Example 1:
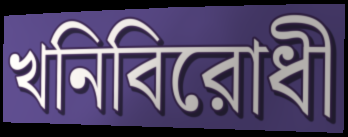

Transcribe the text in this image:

খনিবিরোধী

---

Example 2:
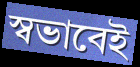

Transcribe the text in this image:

স্বভাবেই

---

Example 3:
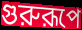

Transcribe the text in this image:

গুরুরূপে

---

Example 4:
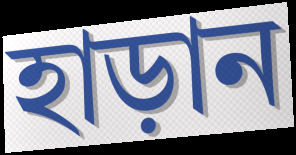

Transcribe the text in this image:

হাড়ান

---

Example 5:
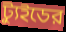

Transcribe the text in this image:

ট্যুইডের